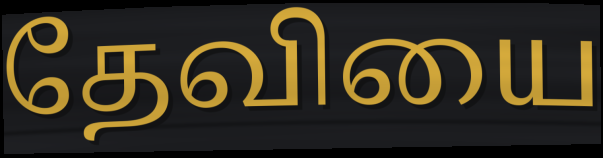
தேவியை